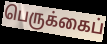
பெருக்கைப்